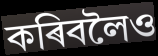
কৰিবলৈও